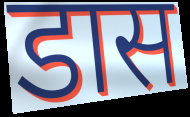
डास